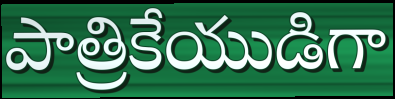
పాత్రికేయుడిగా